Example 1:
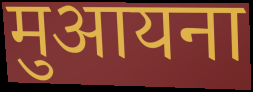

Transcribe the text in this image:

मुआयना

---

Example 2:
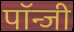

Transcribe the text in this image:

पॉन्जी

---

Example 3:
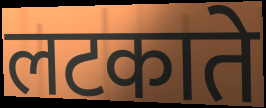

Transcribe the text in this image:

लटकाते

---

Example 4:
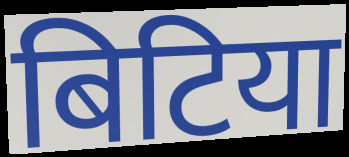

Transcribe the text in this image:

बिटिया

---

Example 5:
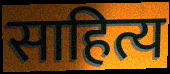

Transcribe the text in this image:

साहित्य